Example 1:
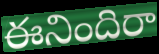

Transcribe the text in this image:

ఈనిందిరా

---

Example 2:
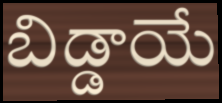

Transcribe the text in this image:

బిడ్డాయే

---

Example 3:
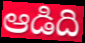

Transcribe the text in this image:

ఆడిది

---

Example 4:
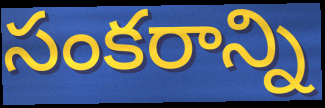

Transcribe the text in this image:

సంకరాన్ని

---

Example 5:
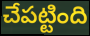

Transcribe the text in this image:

చేపట్టింది